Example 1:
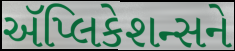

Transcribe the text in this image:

ઍપ્લિકેશન્સને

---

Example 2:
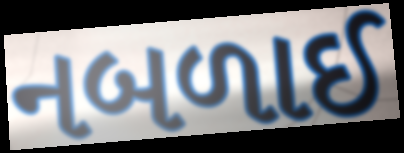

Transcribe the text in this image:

નબળાઈ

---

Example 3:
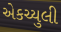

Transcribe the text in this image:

એકચ્યુલી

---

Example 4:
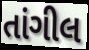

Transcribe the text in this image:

તાંગીલ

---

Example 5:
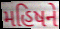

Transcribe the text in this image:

મહિષને